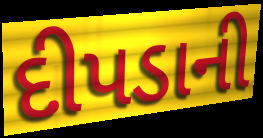
દીપડાની